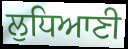
ਲੁਧਿਆਣੀ